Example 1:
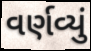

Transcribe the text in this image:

વર્ણવ્યું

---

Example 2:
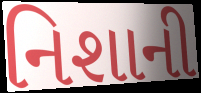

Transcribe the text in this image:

નિશાની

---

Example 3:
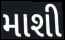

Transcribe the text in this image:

માશી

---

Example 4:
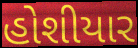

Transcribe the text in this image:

હોશીયાર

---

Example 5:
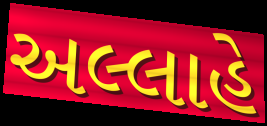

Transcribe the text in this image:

અલ્લાહે